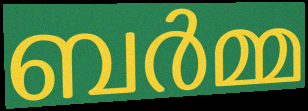
ബർമ്മ